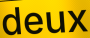
deux